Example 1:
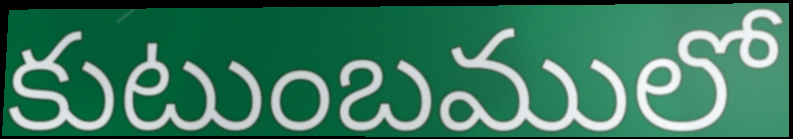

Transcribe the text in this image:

కుటుంబములో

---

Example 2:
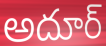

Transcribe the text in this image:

అదూర్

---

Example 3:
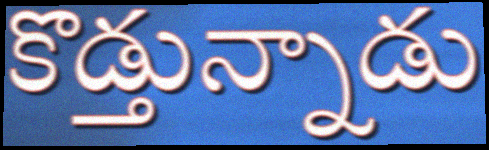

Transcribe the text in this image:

కొడ్తున్నాడు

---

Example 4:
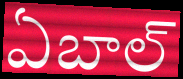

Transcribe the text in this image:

ఏబాల్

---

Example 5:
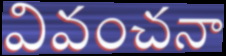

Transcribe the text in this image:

వివంచనా